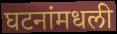
घटनांमधली